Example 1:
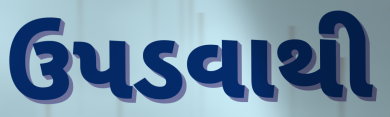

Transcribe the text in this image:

ઉપડવાથી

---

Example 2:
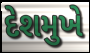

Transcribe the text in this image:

દેશમુખે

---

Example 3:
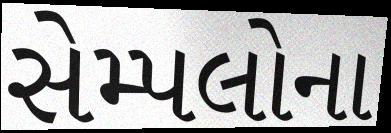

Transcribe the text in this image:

સેમ્પલોના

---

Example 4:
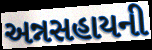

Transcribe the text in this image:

અન્નસહાયની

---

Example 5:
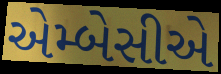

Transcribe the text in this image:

એમ્બેસીએ